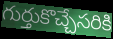
గుర్తుకొచ్చేసరికి